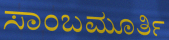
ಸಾಂಬಮೂರ್ತಿ